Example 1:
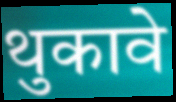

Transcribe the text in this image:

थुकावे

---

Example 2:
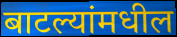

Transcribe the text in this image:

बाटल्यांमधील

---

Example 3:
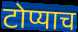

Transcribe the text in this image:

टोप्याच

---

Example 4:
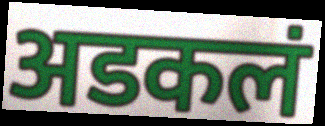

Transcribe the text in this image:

अडकलं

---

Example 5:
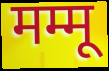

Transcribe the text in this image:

मम्मू